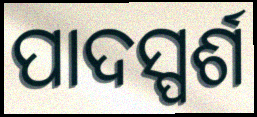
ପାଦସ୍ପର୍ଶ